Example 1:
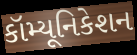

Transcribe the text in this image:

કૉમ્યૂનિકેશન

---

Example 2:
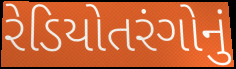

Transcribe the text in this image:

રેડિયોતરંગોનું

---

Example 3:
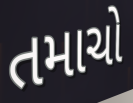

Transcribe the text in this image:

તમાચો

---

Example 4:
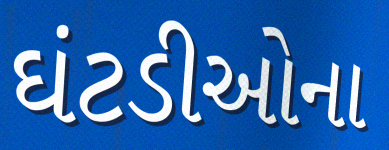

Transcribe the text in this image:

ઘંટડીઓના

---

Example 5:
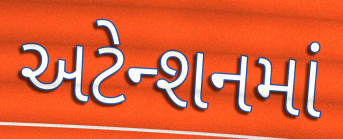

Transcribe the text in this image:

અટેન્શનમાં